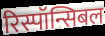
रिस्पॉन्सिबल